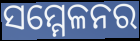
ସମ୍ମେଳନର